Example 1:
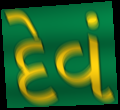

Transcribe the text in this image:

દેવં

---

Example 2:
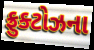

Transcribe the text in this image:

ફ્રુક્ટોઝના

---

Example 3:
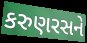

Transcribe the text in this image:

કરુણરસને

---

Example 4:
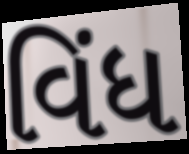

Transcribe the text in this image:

વિંધ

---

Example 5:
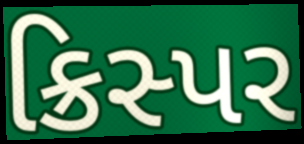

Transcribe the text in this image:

ક્રિસ્પર